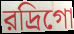
রদ্রিগো